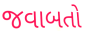
જવાબતો